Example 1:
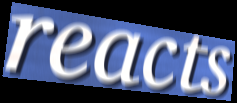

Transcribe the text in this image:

reacts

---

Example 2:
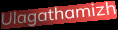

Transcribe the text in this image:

Ulagathamizh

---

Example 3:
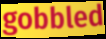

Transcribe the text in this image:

gobbled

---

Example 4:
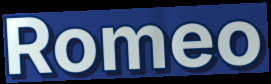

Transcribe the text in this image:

Romeo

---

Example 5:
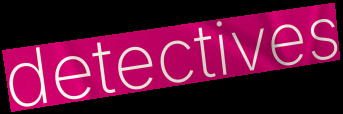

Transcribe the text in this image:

detectives